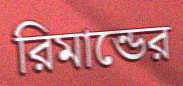
রিমান্ডের